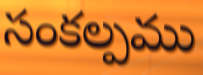
సంకల్పము